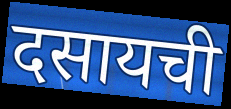
दसायची